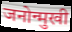
जनोन्मुखी